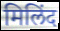
मिलिंद